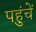
पहुंचें